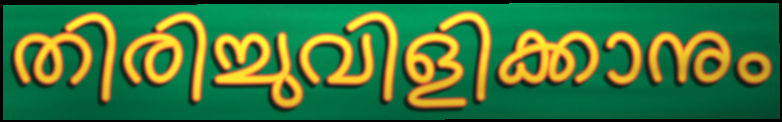
തിരിച്ചുവിളിക്കാനും